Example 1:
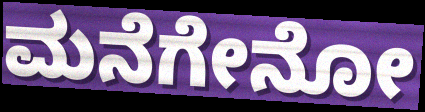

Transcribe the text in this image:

ಮನೆಗೇನೋ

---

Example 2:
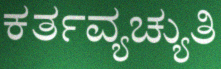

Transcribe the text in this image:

ಕರ್ತವ್ಯಚ್ಯುತಿ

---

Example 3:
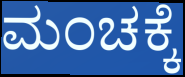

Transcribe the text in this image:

ಮಂಚಕ್ಕೆ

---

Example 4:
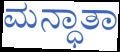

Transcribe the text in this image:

ಮನ್ಧಾತಾ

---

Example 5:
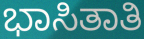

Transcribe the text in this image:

ಭಾಸಿತಾತಿ